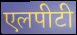
एलपीटी